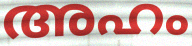
അഹം